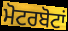
ਮੋਟਰਬੋਟਾਂ